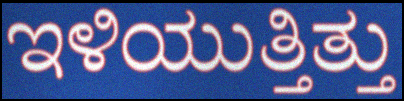
ಇಳಿಯುತ್ತಿತ್ತು